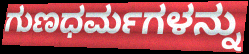
ಗುಣಧರ್ಮಗಳನ್ನು